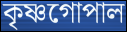
কৃষ্ণগোপাল